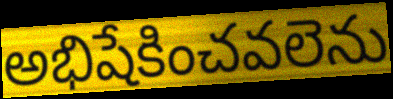
అభిషేకించవలెను